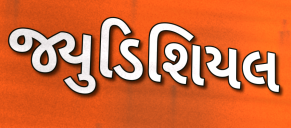
જ્યુડિશિયલ